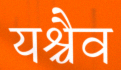
यश्चैव